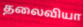
தலைவியா